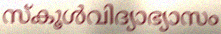
സ്കൂൾവിദ്യാഭ്യാസം